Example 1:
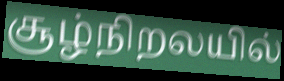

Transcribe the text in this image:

சூழ்நிறலயில்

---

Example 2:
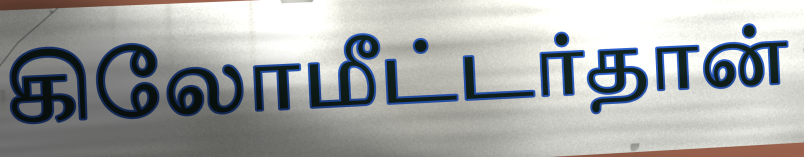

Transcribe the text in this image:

கிலோமீட்டர்தான்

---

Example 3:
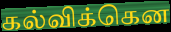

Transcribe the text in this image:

கல்விக்கென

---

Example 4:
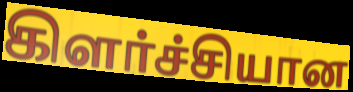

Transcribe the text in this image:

கிளர்ச்சியான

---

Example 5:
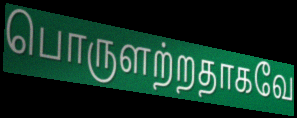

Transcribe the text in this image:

பொருளற்றதாகவே